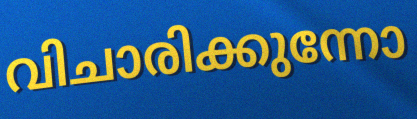
വിചാരിക്കുന്നോ